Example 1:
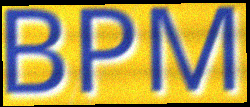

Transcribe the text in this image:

BPM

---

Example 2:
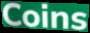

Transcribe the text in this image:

Coins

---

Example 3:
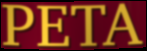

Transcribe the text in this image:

PETA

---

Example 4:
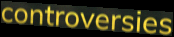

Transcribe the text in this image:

controversies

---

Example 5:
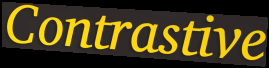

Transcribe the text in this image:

Contrastive